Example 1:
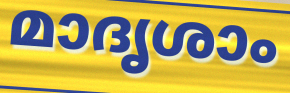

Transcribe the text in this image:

മാദൃശാം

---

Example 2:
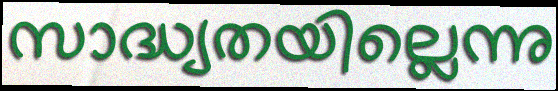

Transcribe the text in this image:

സാദ്ധ്യതയില്ലെന്നു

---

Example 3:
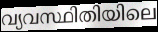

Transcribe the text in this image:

വ്യവസ്ഥിതിയിലെ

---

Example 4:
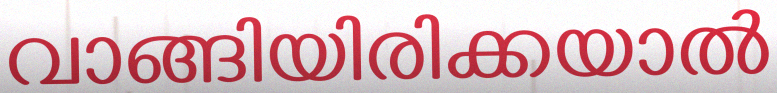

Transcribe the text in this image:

വാങ്ങിയിരിക്കയാൽ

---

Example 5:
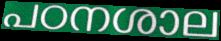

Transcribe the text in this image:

പഠനശാല